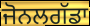
ਜੋਨਲਗੱਡਾ